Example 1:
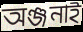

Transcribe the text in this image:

অঞ্জনাই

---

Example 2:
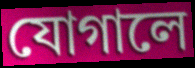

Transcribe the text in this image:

যোগালে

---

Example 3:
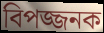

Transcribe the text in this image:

বিপজ্জনক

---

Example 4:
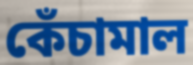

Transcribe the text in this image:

কেঁচামাল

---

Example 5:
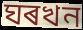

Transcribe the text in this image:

ঘৰখন